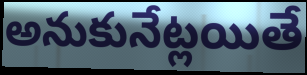
అనుకునేట్లయితే